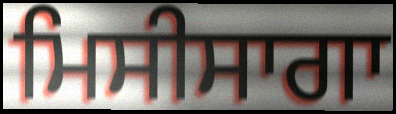
ਮਿਸੀਸਾਗਾ